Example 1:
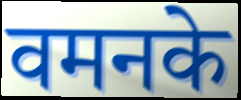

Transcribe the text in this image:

वमनके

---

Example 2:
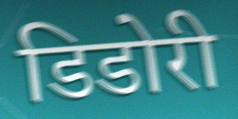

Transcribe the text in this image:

डिडोरी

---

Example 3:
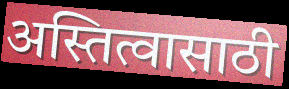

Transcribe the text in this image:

अस्तित्वासाठी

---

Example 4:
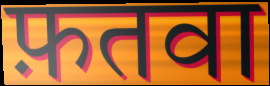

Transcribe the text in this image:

फ़तवा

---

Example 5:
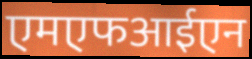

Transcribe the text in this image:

एमएफआईएन